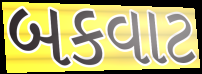
બકવાટ